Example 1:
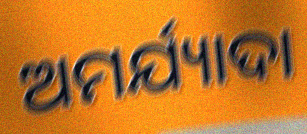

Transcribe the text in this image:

ଅମର୍ଯ୍ୟାଦା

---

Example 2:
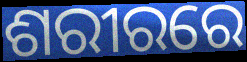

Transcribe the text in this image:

ଶରୀରରେ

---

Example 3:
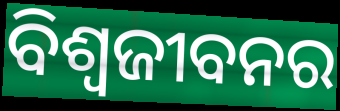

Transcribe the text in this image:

ବିଶ୍ଵଜୀବନର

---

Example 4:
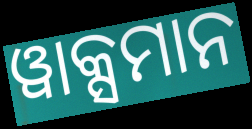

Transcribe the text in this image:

ୱାକ୍ସମାନ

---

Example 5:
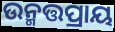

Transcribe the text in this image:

ଉନ୍ମତ୍ତପ୍ରାୟ